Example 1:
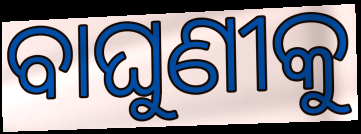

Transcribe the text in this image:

ବାଘୁଣୀକୁ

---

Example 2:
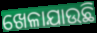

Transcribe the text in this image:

ଖେଳାଯାଉଛି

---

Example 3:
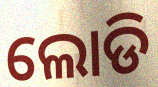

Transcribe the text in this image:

ଲୋଡି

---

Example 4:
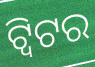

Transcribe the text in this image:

ଟ୍ୱିଟର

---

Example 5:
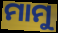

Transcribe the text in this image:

ମାମୁ